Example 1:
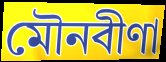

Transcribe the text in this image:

মৌনবীণা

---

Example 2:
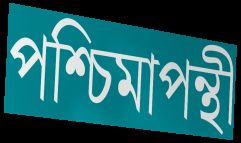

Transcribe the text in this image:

পশ্চিমাপন্থী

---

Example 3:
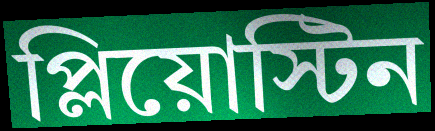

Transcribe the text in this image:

প্লিয়োস্টিন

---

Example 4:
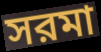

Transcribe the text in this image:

সরমা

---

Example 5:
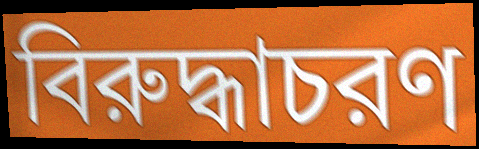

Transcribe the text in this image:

বিরুদ্ধাচরণ